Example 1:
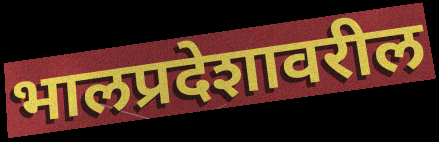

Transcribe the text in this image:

भालप्रदेशावरील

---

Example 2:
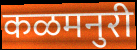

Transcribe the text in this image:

कळमनुरी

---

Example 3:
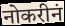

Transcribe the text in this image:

नोकरीनं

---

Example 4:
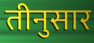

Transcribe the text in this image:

तीनुसार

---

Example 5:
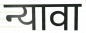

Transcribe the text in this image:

न्यावा